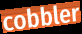
cobbler